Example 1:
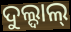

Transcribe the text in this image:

ଦୁଲ୍ଦାଲ୍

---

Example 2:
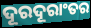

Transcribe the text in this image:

ଦୂରଦୂରାଂତର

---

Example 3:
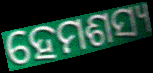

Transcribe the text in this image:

ହେମଶସ୍ୟ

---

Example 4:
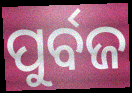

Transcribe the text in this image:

ପୁର୍ବଜ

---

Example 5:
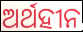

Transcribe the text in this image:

ଅର୍ଥହୀନ